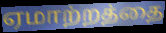
ஏமாற்றத்தை